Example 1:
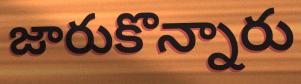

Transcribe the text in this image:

జారుకొన్నారు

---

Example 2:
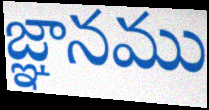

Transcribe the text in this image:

జ్ఞానము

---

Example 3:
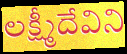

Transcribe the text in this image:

లక్ష్మీదేవిని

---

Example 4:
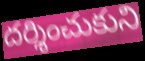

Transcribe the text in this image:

దర్శించుకుని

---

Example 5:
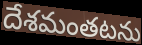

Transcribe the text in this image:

దేశమంతటను